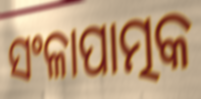
ସଂଳାପାତ୍ମକ